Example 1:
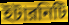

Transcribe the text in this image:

ইটারনিটি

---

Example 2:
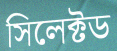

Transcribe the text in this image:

সিলেক্টড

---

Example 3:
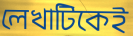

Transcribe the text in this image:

লেখাটিকেই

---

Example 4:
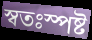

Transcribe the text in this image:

স্বতঃস্পষ্ট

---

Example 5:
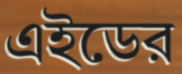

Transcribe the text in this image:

এইডের